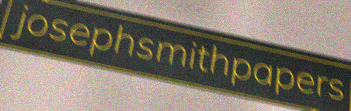
josephsmithpapers